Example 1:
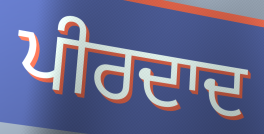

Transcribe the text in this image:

ਪੀਰਦਾਦ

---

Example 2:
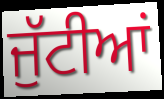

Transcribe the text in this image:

ਜੁੱਟੀਆਂ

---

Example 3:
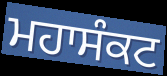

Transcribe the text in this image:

ਮਹਾਸੰਕਟ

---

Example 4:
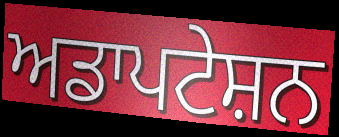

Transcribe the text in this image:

ਅਡਾਪਟੇਸ਼ਨ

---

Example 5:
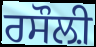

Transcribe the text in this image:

ਰਸੌਲ਼ੀ